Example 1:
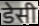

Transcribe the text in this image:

डेसी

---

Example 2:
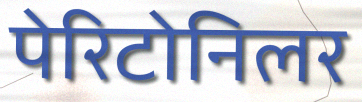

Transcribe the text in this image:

पेरिटोनिलर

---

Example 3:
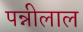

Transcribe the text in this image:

पन्नीलाल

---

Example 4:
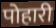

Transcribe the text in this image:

पोहारी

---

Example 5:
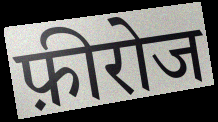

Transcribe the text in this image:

फ़ीरोज